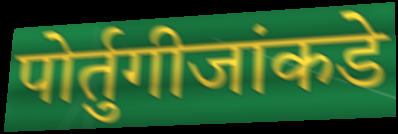
पोर्तुगीजांकडे